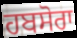
ਹਬਸੋਰਾ